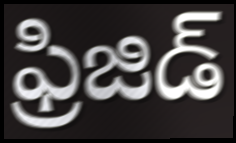
ఫ్రిజిడ్